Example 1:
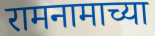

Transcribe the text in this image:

रामनामाच्या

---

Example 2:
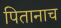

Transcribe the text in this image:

पितानाच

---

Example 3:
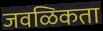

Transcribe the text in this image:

जवळिकता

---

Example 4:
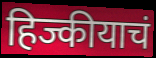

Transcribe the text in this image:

हिज्कीयाचं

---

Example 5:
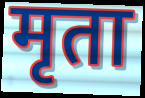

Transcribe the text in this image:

मृता